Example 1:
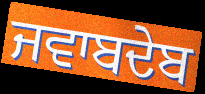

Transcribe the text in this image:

ਜਵਾਬਦੇਬ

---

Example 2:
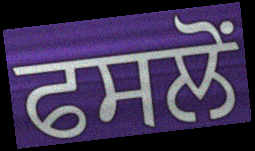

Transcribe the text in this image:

ਫਸਲੋਂ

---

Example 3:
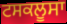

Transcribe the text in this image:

ਟਸਕਲੂਸਾ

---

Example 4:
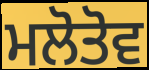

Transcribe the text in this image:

ਮਲੋਤੋਵ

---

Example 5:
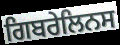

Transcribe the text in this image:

ਗਿਬਰੇਲਿਨਸ